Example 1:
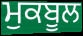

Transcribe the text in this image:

ਮੁਕਬੂਲ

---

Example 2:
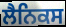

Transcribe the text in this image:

ਲੈਨਿਕਸ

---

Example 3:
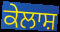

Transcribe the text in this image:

ਕੇਲਾਸ਼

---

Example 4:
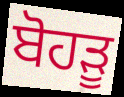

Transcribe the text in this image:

ਬੋਹੜੂ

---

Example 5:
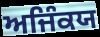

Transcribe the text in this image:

ਅਜਿੰਕਯ